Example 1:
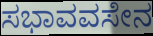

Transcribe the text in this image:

ಸಭಾವವಸೇನ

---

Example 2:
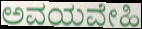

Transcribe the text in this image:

ಅವಯವೇಹಿ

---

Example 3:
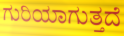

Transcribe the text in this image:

ಗುರಿಯಾಗುತ್ತದೆ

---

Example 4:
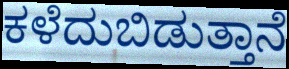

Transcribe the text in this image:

ಕಳೆದುಬಿಡುತ್ತಾನೆ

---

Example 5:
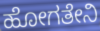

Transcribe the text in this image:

ಹೋಗತೇನಿ